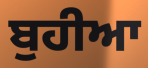
ਬੁਹੀਆ